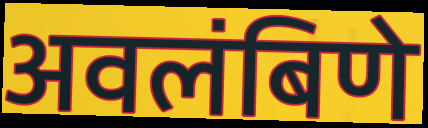
अवलंबिणे